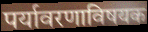
पर्यावरणाविषयक